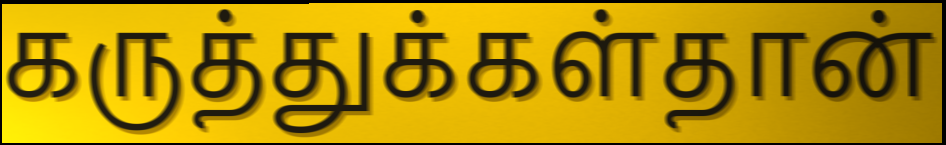
கருத்துக்கள்தான்